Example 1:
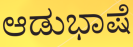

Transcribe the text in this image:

ಆಡುಭಾಷೆ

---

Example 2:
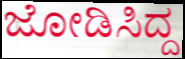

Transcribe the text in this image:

ಜೋಡಿಸಿದ್ದ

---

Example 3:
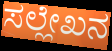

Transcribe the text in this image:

ಸಲ್ಲೇಖನ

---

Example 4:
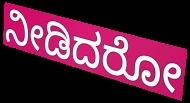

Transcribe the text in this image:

ನೀಡಿದರೋ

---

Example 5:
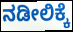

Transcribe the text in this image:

ನಡೀಲಿಕ್ಕೆ